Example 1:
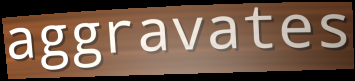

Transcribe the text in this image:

aggravates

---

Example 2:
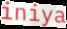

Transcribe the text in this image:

iniya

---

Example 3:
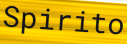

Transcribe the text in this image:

Spirito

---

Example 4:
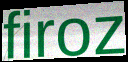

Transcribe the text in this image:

firoz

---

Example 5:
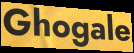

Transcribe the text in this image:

Ghogale